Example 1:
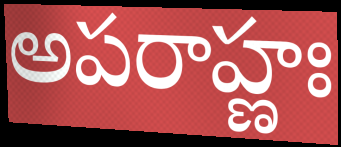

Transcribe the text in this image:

అపరాహ్ణః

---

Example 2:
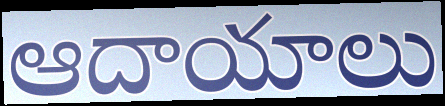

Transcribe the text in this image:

ఆదాయాలు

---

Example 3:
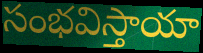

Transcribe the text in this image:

సంభవిస్తాయా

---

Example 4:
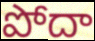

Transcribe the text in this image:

పోదా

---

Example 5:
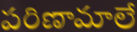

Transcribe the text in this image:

పరిణామాలే